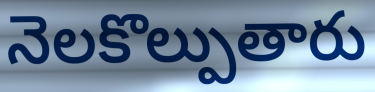
నెలకొల్పుతారు